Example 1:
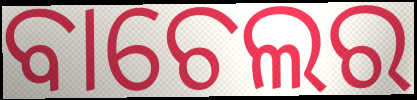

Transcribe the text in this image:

ବାଚେଲର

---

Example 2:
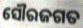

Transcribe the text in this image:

ସୌରଜଗତ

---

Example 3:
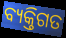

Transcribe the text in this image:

ବ୍ୟକ୍ତିଗତ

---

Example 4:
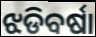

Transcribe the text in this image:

ଝଡିବର୍ଷା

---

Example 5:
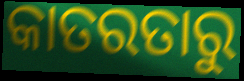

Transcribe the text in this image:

କାତରତାରୁ